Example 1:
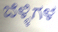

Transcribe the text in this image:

ಬೆಳ್ಳಿಗಳ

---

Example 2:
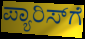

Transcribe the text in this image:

ಪ್ಯಾರಿಸ್‍ಗೆ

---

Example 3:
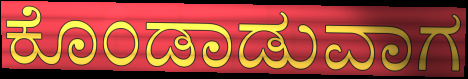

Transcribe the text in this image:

ಕೊಂಡಾಡುವಾಗ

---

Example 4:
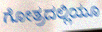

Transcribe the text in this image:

ಗೋತ್ರದಲ್ಲಿಯೂ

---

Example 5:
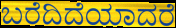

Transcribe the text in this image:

ಬರೆದಿದೆಯಾದರೆ